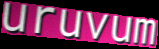
uruvum